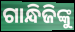
ଗାନ୍ଧିଜିଙ୍କୁ